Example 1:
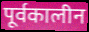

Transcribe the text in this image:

पूर्वकालीन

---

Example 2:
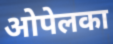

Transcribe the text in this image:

ओपेलका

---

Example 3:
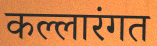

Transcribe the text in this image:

कल्लारंगत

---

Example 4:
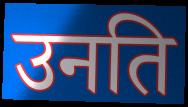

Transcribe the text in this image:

उनति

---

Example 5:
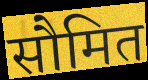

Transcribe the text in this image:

सौमित